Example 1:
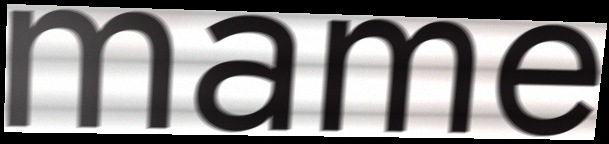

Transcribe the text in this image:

mame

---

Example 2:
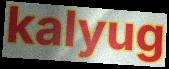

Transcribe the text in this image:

kalyug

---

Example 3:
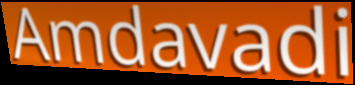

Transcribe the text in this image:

Amdavadi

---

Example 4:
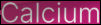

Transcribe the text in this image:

Calcium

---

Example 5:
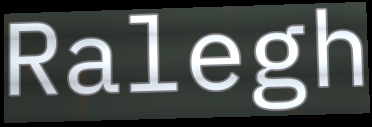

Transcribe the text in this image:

Ralegh